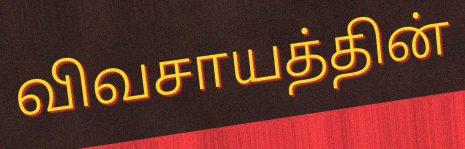
விவசாயத்தின்